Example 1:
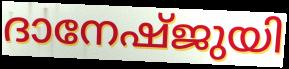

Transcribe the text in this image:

ദാനേഷ്ജുയി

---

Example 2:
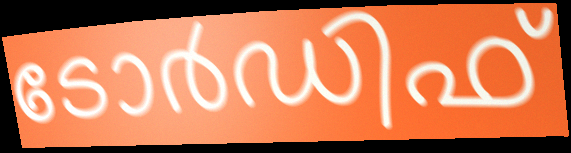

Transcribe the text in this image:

ടോർഡിഫ്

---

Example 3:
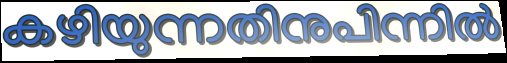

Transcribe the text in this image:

കഴിയുന്നതിനുപിന്നിൽ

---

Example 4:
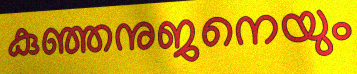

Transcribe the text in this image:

കുഞ്ഞനുജനെയും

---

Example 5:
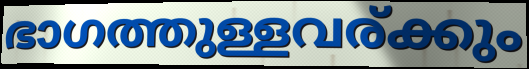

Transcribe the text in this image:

ഭാഗത്തുള്ളവര്ക്കും